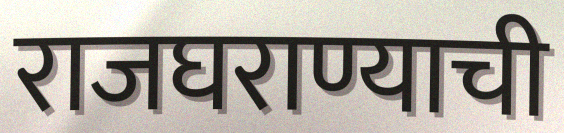
राजघराण्याची